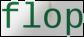
flop